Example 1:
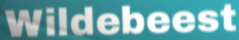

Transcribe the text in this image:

Wildebeest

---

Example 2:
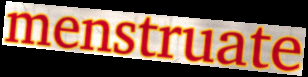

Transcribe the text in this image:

menstruate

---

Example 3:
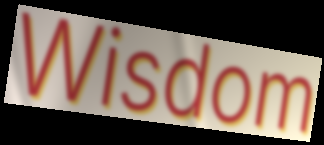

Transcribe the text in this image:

Wisdom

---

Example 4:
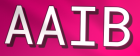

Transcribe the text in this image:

AAIB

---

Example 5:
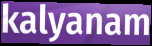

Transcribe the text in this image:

kalyanam